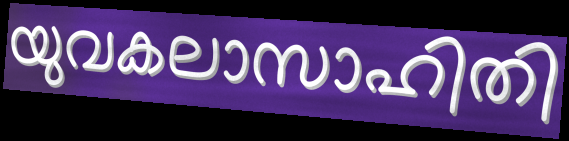
യുവകലാസാഹിതി